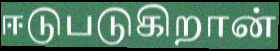
ஈடுபடுகிறான்